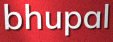
bhupal